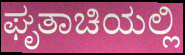
ಘೃತಾಚಿಯಲ್ಲಿ